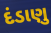
દંડાણુ